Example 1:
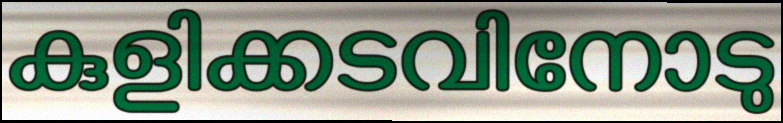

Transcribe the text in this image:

കുളിക്കടവിനോടു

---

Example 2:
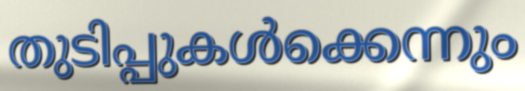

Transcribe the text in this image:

തുടിപ്പുകൾക്കെന്നും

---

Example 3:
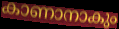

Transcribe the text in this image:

കാണാനാകും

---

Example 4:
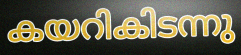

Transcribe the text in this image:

കയറികിടന്നു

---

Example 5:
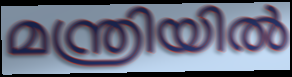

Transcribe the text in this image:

മന്ത്രിയിൽ